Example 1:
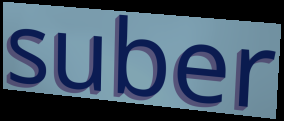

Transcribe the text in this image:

suber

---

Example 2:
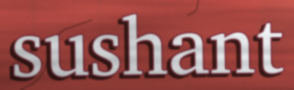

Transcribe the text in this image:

sushant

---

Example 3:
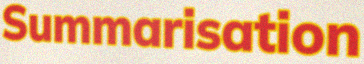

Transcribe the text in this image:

Summarisation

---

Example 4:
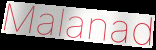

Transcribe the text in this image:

Malanad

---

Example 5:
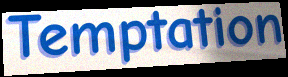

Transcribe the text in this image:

Temptation